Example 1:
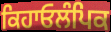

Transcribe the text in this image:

ਕਿਹਾਓਲੰਪਿਕ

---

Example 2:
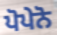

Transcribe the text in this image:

ਪੋਪੇਨੋ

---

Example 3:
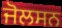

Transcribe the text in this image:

ਜੋਲਸਨ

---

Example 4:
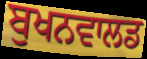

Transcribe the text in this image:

ਬੁਖਨਵਾਲਡ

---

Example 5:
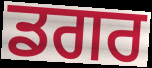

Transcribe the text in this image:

ਡਗਰ